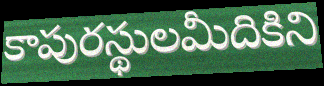
కాపురస్థులమీదికిని